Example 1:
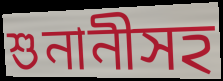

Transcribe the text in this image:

শুনানীসহ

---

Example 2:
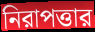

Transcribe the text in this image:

নিরাপত্তার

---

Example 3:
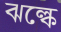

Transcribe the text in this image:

ঝল্কে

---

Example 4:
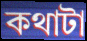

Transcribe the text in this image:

কথাটা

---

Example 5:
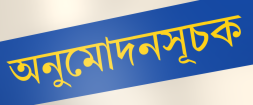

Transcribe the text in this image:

অনুমোদনসূচক